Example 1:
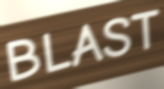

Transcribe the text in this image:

BLAST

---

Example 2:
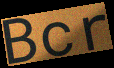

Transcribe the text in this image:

Bcr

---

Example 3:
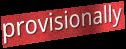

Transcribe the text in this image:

provisionally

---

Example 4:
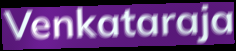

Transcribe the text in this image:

Venkataraja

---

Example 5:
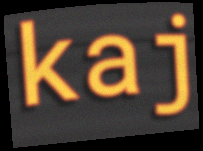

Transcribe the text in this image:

kaj